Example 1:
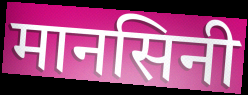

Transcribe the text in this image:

मानसिनी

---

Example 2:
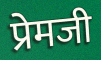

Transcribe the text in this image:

प्रेमजी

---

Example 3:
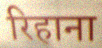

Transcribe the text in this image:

रिहाना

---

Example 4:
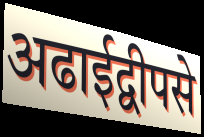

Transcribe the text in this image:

अढाईद्वीपसे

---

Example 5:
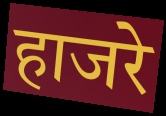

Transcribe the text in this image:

हाजरे